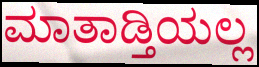
ಮಾತಾಡ್ತಿಯಲ್ಲ